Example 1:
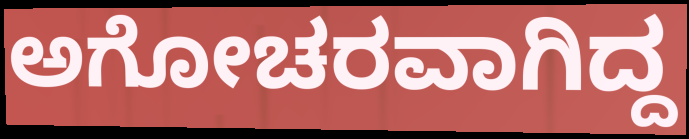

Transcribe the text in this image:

ಅಗೋಚರವಾಗಿದ್ದ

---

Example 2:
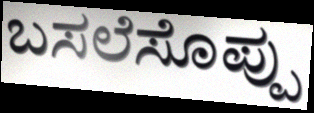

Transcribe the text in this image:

ಬಸಲೆಸೊಪ್ಪು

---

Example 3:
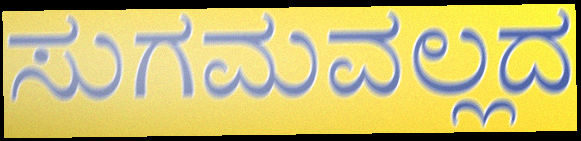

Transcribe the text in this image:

ಸುಗಮವಲ್ಲದ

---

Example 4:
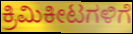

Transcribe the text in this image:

ಕ್ರಿಮಿಕೀಟಗಳಿಗೆ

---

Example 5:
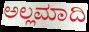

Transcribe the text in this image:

ಅಲ್ಲಮಾದಿ